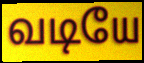
வடியே